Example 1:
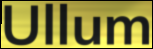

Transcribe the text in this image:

Ullum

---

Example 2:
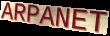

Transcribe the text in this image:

ARPANET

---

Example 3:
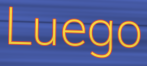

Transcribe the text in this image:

Luego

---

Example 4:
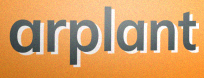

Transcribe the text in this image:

arplant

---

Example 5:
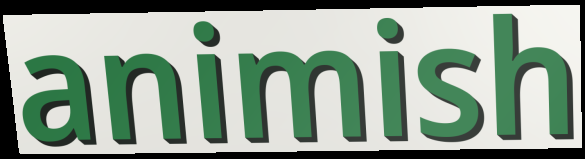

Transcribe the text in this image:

animish